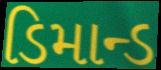
ડિમાન્ડ